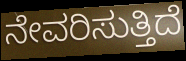
ನೇವರಿಸುತ್ತಿದೆ